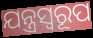
ଯନ୍ତ୍ରସ୍ୱରୂପ